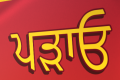
ਪੜਾਓ